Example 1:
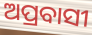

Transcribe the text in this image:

ଅପ୍ରବାସୀ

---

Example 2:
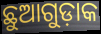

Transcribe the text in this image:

ଛୁଆଗୁଡ଼ାକ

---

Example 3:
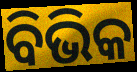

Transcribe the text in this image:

ବିଭିକ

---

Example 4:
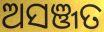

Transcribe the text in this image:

ଅସଞ୍ଜତ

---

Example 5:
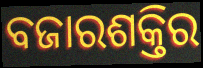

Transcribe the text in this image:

ବଜାରଶକ୍ତିର